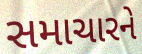
સમાચારને